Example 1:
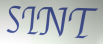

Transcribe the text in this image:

SINT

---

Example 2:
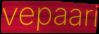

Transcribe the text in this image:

vepaari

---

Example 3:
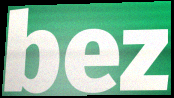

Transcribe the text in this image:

bez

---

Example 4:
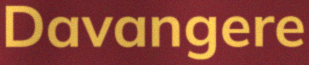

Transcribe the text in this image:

Davangere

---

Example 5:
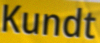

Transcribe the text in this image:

Kundt